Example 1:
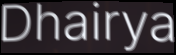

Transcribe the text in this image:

Dhairya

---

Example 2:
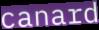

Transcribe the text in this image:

canard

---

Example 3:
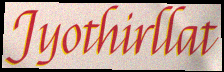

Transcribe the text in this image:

Jyothirllat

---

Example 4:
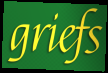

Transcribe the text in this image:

griefs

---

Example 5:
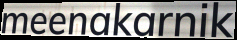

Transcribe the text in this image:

meenakarnik